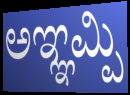
ಅಞ್ಞಮ್ಪಿ